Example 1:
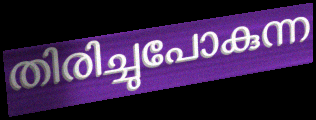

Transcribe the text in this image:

തിരിച്ചുപോകുന്ന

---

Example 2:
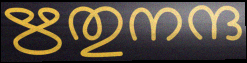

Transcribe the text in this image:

ഋതുനന്ദ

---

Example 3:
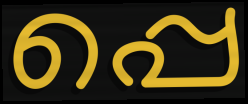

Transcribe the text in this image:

പ്പെ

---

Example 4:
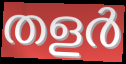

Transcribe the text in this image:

തളർ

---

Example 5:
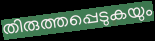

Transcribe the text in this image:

തിരുത്തപ്പെടുകയും